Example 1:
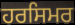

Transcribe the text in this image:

ਹਰਸਿਮਰ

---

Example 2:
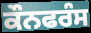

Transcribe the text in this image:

ਕੌਨਫਰੰਸ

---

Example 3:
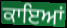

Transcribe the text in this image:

ਕਾਇਆਂ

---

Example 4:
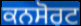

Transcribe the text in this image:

ਕਨਸੋਰਟ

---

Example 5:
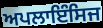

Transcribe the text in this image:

ਅਪਲਾਇੰਸਿਜ